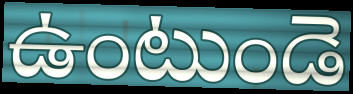
ఉంటుండె